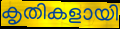
കൃതികളായി